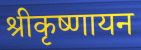
श्रीकृष्णायन